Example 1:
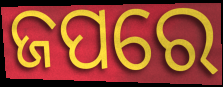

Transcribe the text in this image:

ଜପରେ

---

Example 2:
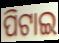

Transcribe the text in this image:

ପିଟାଇ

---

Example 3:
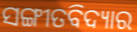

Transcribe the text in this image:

ସଙ୍ଗୀତବିଦ୍ୟାର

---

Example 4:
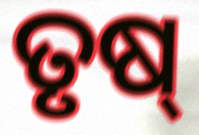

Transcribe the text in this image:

ତୃଷ୍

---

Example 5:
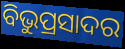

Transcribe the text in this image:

ବିଭୁପ୍ରସାଦର